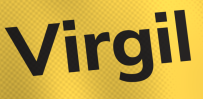
Virgil